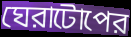
ঘেরাটোপের